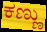
ಕಣ್ಣು